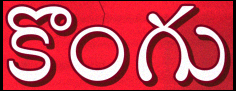
కొంగు